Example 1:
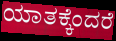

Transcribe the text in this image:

ಯಾತಕ್ಕೆಂದರೆ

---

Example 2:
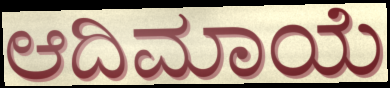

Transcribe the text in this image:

ಆದಿಮಾಯೆ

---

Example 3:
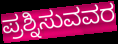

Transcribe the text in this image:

ಪ್ರಶ್ನಿಸುವವರ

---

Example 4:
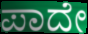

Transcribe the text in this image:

ಪಾದೇ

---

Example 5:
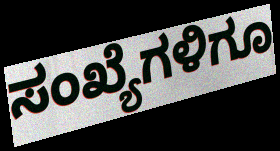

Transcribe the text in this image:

ಸಂಖ್ಯೆಗಳಿಗೂ